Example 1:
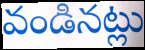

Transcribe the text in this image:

వండినట్లు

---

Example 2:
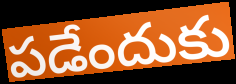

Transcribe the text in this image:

పడేందుకు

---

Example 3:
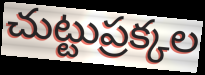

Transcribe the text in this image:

చుట్టుప్రక్కల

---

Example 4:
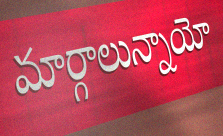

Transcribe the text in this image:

మార్గాలున్నాయో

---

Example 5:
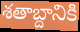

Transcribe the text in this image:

శతాబ్దానికి